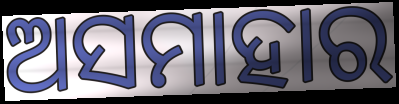
ଅସମାହାର